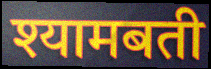
श्यामबती